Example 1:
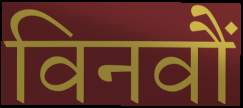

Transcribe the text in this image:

विनवौं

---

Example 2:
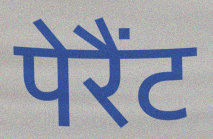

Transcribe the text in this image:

पेरैंट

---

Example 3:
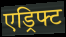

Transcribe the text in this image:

एड्रिफ्ट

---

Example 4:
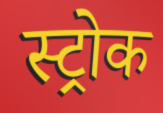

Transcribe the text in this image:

स्ट्रोक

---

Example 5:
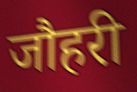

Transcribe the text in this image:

जौहरी